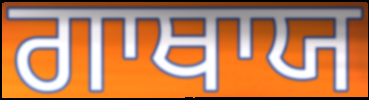
ਗਾਥਾਯ